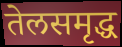
तेलसमृद्ध